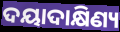
ଦୟାଦାକ୍ଷିଣ୍ୟ